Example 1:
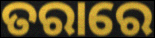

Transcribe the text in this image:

ତରାରେ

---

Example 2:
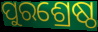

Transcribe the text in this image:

ପୁରଶ୍ରେଷ୍ଠ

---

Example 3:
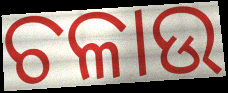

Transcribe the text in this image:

ଚଳାଉ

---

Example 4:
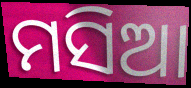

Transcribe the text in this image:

ମସିଆ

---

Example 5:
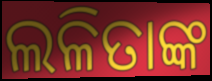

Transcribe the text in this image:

ଲଳିତାଙ୍କ